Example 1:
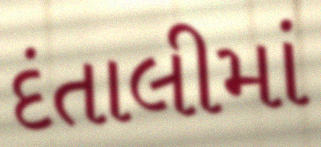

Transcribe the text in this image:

દંતાલીમાં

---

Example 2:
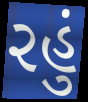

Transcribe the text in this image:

રહું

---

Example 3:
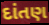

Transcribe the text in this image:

દાંતણ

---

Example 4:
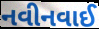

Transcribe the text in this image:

નવીનવાઈ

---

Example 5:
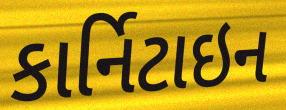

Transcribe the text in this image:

કાર્નિટાઇન